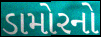
ડામોરનો